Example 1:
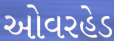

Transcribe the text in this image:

ઓવરહેડ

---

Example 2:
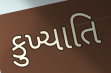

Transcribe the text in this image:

કુખ્યાતિ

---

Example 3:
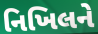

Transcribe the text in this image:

નિખિલને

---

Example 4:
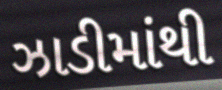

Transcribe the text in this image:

ઝાડીમાંથી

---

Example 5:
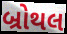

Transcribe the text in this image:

બ્રોથલ